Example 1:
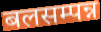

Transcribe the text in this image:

बलसम्पन्न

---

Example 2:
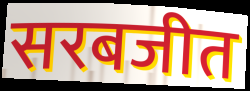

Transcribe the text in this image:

सरबजीत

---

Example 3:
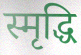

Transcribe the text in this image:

स्मृद्धि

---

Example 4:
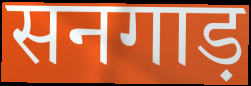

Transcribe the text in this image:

सनगाड़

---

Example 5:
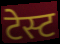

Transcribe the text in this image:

टेस्‍ट